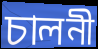
চালনী